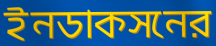
ইনডাকসনের